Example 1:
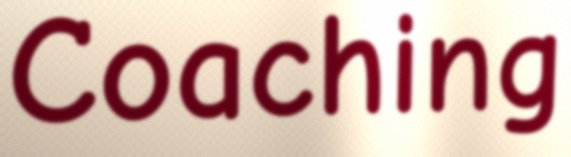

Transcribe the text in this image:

Coaching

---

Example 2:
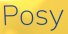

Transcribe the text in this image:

Posy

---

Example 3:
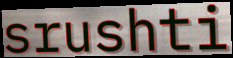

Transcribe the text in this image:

srushti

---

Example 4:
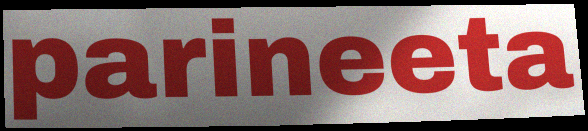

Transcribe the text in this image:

parineeta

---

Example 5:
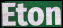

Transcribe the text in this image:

Eton